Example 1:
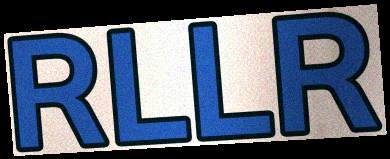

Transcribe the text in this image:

RLLR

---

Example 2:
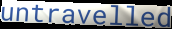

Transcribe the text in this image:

untravelled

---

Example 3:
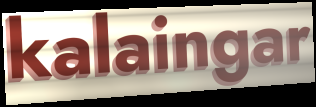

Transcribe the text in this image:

kalaingar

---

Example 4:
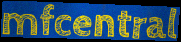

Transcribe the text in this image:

mfcentral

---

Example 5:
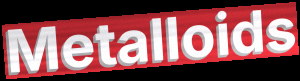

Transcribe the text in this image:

Metalloids